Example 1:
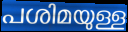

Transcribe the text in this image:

പശിമയുള്ള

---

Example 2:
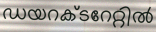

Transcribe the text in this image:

ഡയറക്ടറേറ്റിൽ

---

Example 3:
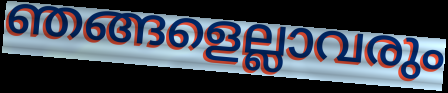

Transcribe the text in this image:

ഞങ്ങളെല്ലാവരും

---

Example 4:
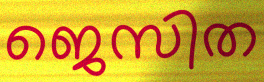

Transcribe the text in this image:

ജെസിത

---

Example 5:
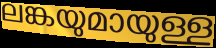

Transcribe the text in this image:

ലങ്കയുമായുള്ള